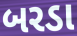
બરડા